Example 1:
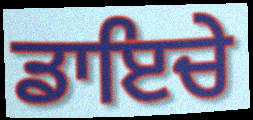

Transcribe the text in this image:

ਡਾਇਚੇ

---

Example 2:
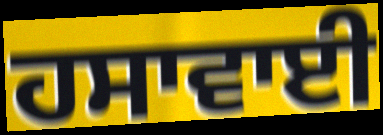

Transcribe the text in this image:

ਹਸਾਵਾਈ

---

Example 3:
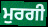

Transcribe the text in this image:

ਮੁਰਗੀ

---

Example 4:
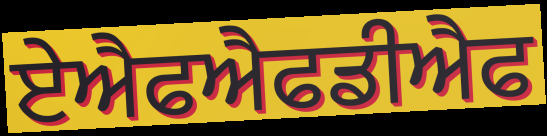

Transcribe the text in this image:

ਏਐਫਐਫਡੀਐਫ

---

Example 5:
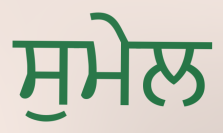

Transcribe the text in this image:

ਸੁਮੇਲ